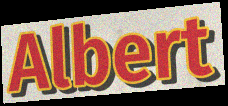
Albert